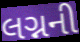
લગ્નની